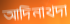
আদিনাথদা